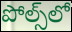
పోల్స్‌లో